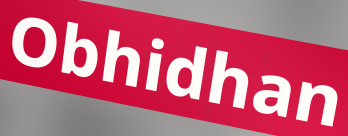
Obhidhan